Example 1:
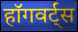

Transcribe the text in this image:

हॉगवर्ट्स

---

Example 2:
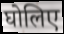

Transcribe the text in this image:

घोलिए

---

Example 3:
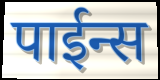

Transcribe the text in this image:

पाईन्स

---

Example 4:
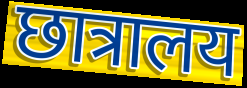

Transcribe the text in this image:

छात्रालय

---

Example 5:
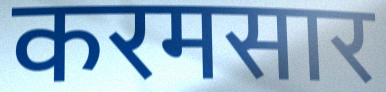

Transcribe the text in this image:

करमसार